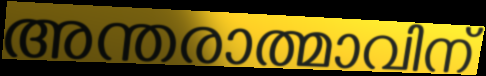
അന്തരാത്മാവിന്